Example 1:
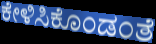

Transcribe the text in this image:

ಕೇಳಿಸಿಕೊಂಡಂತೆ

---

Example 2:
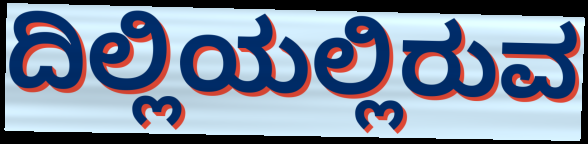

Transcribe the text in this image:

ದಿಲ್ಲಿಯಲ್ಲಿರುವ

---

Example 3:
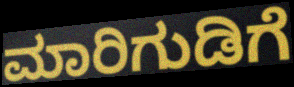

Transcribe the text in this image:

ಮಾರಿಗುಡಿಗೆ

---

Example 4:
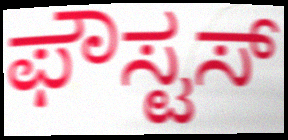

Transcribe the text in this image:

ಫೌಸ್ಟಸ್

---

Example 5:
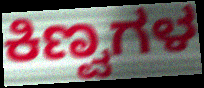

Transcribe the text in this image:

ಕಿಣ್ವಗಳ